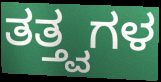
ತತ್ತ್ವಗಳ